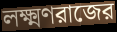
লক্ষ্মণরাজের